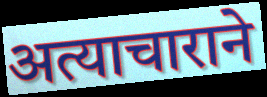
अत्याचाराने